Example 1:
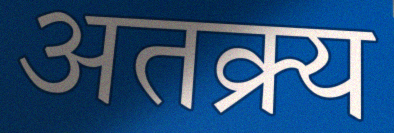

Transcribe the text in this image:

अतक्र्य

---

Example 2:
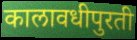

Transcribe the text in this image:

कालावधीपुरती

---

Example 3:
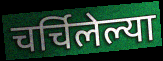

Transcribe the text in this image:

चर्चिलेल्या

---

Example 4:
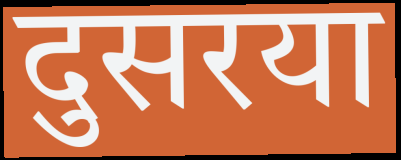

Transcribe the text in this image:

दुसरया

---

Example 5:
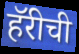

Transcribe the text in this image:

हॅरीची